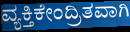
ವ್ಯಕ್ತಿಕೇಂದ್ರಿತವಾಗಿ